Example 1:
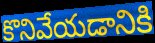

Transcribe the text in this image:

కొనివేయడానికి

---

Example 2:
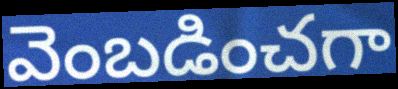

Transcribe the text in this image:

వెంబడించగా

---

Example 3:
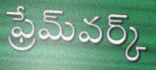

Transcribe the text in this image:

ఫ్రేమ్‌వర్క్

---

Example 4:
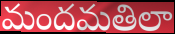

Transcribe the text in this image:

మందమతిలా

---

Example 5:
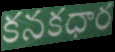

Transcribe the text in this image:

కనకధార